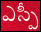
ఎస్పీ